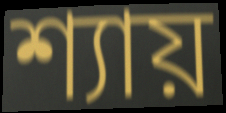
শ্যায়